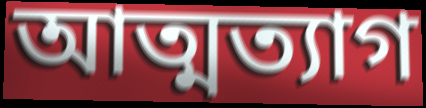
আত্মত্যাগ